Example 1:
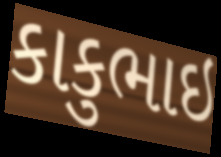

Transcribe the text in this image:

કાકુભાઇ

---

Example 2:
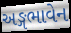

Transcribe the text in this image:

અઙ્ગભાવેન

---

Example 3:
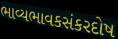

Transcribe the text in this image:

ભાવ્યભાવકસંકરદોષ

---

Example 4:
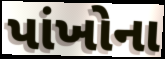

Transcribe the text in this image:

પાંખોના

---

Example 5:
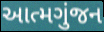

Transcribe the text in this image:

આત્મગુંજન